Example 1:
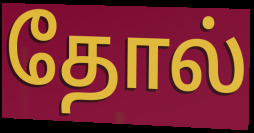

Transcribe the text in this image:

தோல்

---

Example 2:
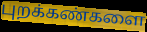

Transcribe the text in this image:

புறக்கண்களை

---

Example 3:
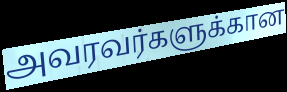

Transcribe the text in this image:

அவரவர்களுக்கான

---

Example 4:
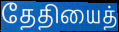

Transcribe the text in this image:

தேதியைத்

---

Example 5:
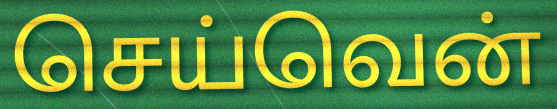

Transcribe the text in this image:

செய்வென்